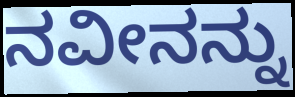
ನವೀನನ್ನು